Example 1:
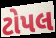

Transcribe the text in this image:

ટોપલ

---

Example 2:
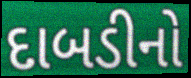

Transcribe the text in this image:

દાબડીનો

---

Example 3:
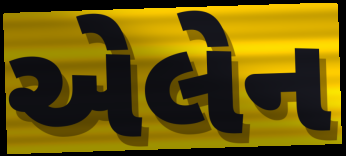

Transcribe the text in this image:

એલેન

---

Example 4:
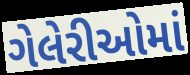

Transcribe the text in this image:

ગેલેરીઓમાં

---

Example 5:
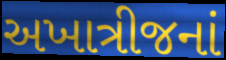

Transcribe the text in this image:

અખાત્રીજનાં